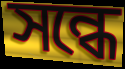
সন্ধে